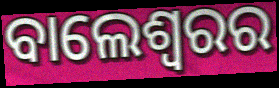
ବାଲେଶ୍ୱରର